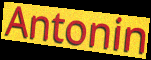
Antonin